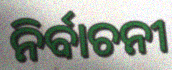
ନିର୍ବାଚନୀ